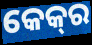
କେକ୍‌ର